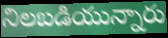
నిలబడియున్నారు